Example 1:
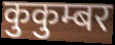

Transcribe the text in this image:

कुकुम्बर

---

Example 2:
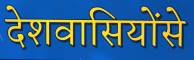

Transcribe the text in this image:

देशवासियोंसे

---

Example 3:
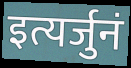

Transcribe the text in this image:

इत्यर्जुनं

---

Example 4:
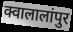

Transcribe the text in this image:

क्वालालांपुर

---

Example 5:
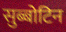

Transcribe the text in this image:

सुब्बोटिन